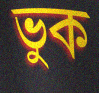
ভুক